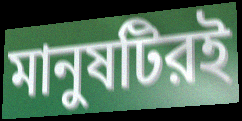
মানুষটিরই